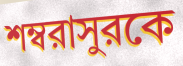
শম্বরাসুরকে